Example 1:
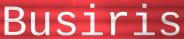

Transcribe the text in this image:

Busiris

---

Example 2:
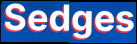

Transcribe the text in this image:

Sedges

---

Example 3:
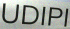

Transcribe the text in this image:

UDIPI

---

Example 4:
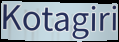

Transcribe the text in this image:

Kotagiri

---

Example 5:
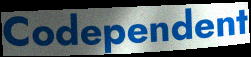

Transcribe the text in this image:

Codependent